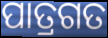
ପାତ୍ରଗତ